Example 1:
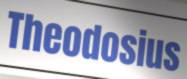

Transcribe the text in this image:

Theodosius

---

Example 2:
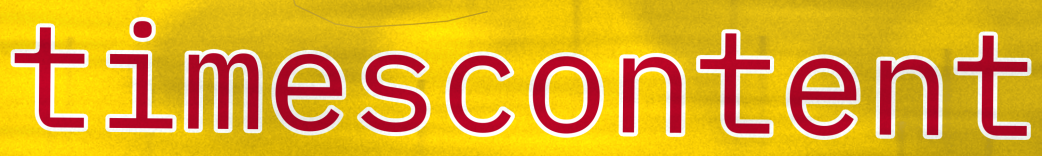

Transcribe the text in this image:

timescontent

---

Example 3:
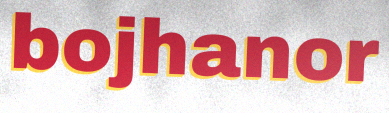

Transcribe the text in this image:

bojhanor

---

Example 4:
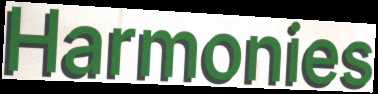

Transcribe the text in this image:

Harmonies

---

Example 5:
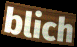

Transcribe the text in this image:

blich